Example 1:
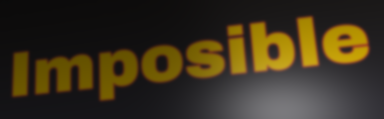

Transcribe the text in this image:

Imposible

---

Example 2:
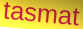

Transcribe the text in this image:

tasmat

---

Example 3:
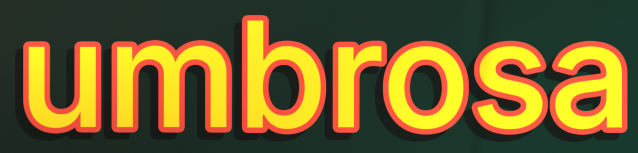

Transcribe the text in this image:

umbrosa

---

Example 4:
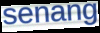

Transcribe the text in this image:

senang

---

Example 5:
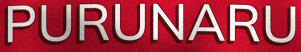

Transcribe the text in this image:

PURUNARU